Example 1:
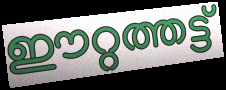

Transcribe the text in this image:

ഈറ്റത്തട്ട്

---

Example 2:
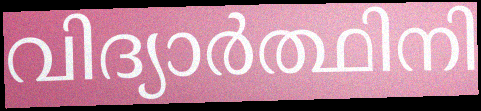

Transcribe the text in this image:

വിദ്യാർത്ഥിനി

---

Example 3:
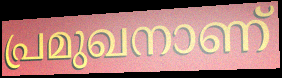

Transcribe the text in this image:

പ്രമുഖനാണ്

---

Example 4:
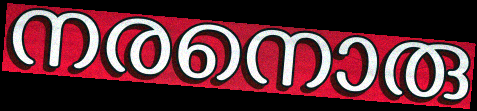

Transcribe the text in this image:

നരനൊരു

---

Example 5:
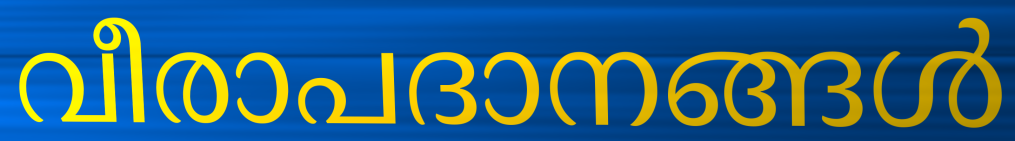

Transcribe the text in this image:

വീരാപദാനങ്ങൾ